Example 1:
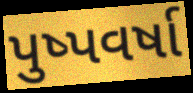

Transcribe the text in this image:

પુષ્પવર્ષા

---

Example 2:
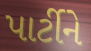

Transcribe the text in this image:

પાર્ટીને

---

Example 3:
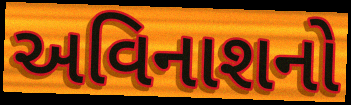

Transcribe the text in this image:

અવિનાશનો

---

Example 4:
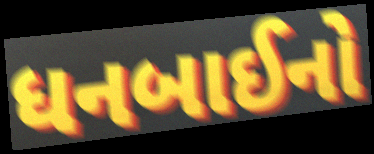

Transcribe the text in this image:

ધનબાઈનો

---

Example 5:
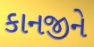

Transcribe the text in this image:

કાનજીને